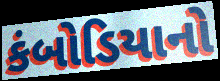
કંબોડિયાનો